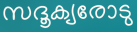
സദൂക്യരോടു